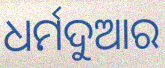
ଧର୍ମଦୁଆର